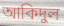
আকিদুল